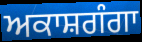
ਅਕਾਸ਼ਗੰਗਾ